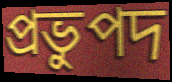
প্রভুপদ